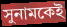
সুনামকেই